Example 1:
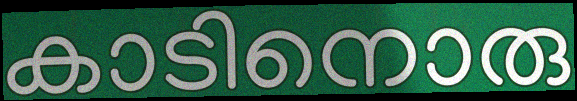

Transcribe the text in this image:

കാടിനൊരു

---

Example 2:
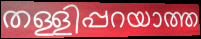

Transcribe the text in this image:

തള്ളിപ്പറയാത്ത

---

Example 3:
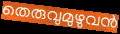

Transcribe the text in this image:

തെരുവുമുഴുവൻ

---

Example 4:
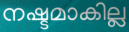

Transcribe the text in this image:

നഷ്ടമാകില്ല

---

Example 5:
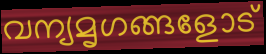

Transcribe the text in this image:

വന്യമൃഗങ്ങളോട്